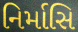
નિર્માસિ